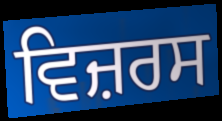
ਵਿਜ਼ਰਸ